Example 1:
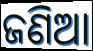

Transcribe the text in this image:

ଜଣିଆ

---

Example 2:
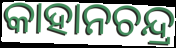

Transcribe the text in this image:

କାହାନଚନ୍ଦ୍ର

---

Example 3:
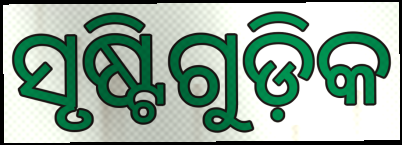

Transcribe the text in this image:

ସୃଷ୍ଟିଗୁଡ଼ିକ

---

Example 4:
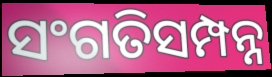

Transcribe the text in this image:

ସଂଗତିସମ୍ପନ୍ନ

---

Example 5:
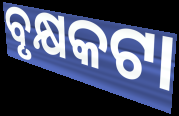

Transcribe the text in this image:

ବୃକ୍ଷକଟା